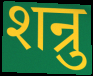
शन्रु